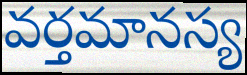
వర్తమానస్య